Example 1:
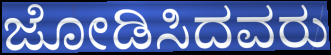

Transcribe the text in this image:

ಜೋಡಿಸಿದವರು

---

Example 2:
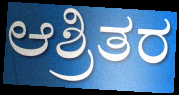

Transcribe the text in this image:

ಆಶ್ರಿತರ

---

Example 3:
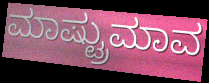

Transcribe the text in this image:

ಮಾಷ್ಟ್ರುಮಾವ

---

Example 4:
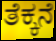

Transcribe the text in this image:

ತೆಕ್ಕನೆ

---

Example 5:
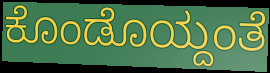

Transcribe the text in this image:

ಕೊಂಡೊಯ್ದಂತೆ